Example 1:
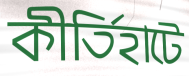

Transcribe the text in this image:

কীর্তিহাটে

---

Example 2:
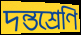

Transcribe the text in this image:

দন্তশ্রেণি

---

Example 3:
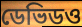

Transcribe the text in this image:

ডেভিডও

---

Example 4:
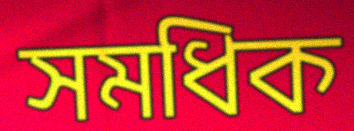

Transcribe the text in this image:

সমধিক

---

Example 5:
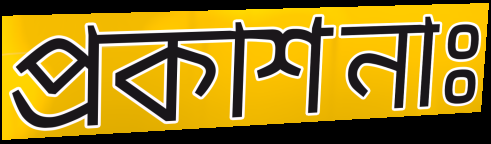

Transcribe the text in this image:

প্রকাশনাঃ